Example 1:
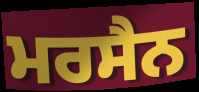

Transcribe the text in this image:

ਮਰਸੈਨ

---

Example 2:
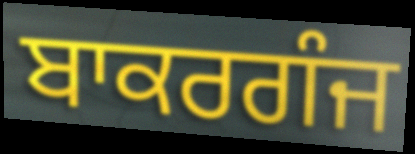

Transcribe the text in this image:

ਬਾਕਰਗੰਜ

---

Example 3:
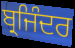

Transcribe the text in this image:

ਬ੍ਰਜਿੰਦਰ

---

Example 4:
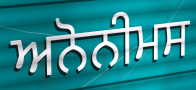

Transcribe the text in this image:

ਅਨੋਨੀਮਸ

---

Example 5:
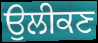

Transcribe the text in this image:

ਉਲੀਕਣ